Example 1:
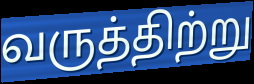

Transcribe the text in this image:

வருத்திற்று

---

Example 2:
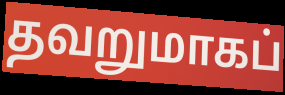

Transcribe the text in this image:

தவறுமாகப்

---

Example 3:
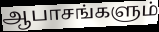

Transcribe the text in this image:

ஆபாசங்களும்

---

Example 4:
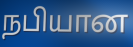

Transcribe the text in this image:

நபியான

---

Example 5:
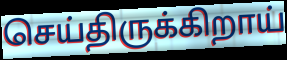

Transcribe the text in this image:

செய்திருக்கிறாய்